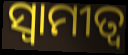
ସ୍ଵାମୀତ୍ବ